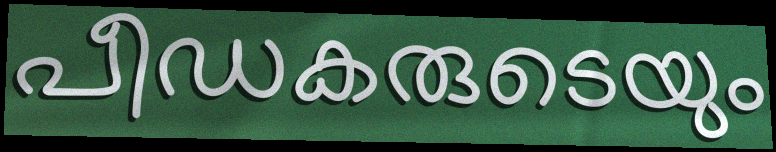
പീഡകരുടെയും